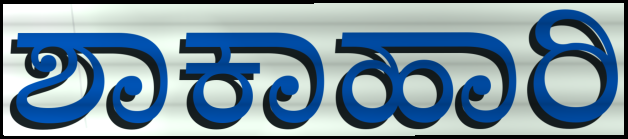
ಶಾಕಾಹಾರಿ